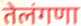
तेलंगणा